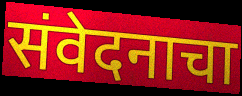
संवेदनाचा